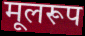
मूलरूप